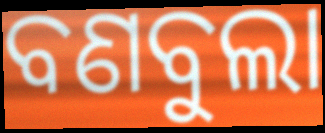
ବଣବୁଲା